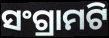
ସଂଗ୍ରାମଟି